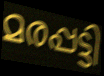
മരപ്പട്ടി